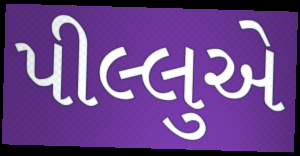
પીલ્લુએ